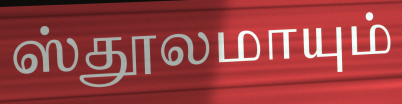
ஸ்தூலமாயும்